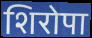
शिरोपा